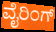
ವೈರಿಂಗ್